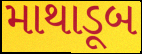
માથાડૂબ